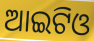
ଆଇଟିଓ